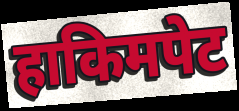
हाकिमपेट